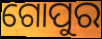
ଗୋପୁର